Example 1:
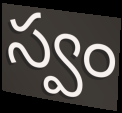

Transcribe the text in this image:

స్వం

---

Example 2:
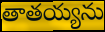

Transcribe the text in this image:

తాతయ్యను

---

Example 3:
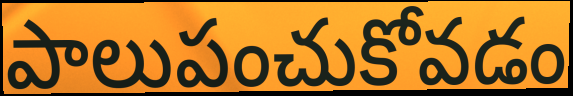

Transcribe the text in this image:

పాలుపంచుకోవడం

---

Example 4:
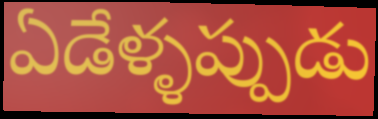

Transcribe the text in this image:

ఏడేళ్ళప్పుడు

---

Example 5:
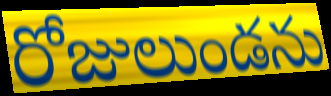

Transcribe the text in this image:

రోజులుండను